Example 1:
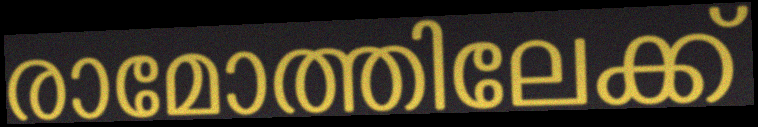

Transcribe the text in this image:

രാമോത്തിലേക്ക്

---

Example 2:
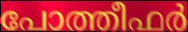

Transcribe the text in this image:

പോത്തീഫർ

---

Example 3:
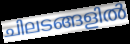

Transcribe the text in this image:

ചിലടങ്ങളിൽ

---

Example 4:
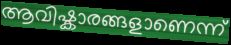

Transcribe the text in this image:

ആവിഷ്കാരങ്ങളാണെന്ന്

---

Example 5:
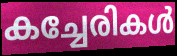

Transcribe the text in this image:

കച്ചേരികൾ